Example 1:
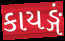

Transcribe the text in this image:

કાયઙ્ગં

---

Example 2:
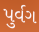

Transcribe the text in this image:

પુર્વગ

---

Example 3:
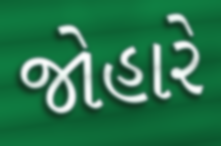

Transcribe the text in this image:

જોહારે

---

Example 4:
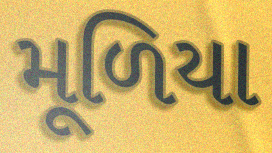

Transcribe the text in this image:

મૂળિયા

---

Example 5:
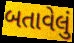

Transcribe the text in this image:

બતાવેલું